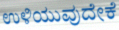
ಉಳಿಯುವುದೇಕೆ